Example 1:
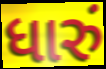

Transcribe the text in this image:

ધારું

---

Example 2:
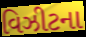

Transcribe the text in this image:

વિઝીટના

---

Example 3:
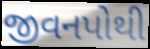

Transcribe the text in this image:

જીવનપોથી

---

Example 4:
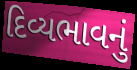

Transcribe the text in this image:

દિવ્યભાવનું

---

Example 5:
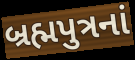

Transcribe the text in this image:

બ્રહ્મપુત્રનાં